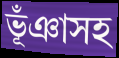
ভূঁঞাসহ